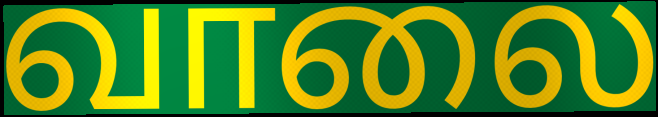
வாலை